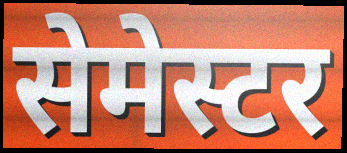
सेमेस्टर